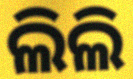
ଲିଲି